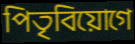
পিতৃবিয়োগে